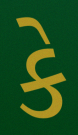
કે